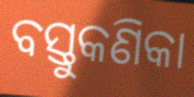
ବସ୍ତୁକଣିକା